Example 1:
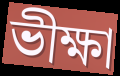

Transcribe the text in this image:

ভীক্ষা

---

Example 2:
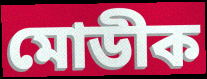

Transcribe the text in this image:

মোডীক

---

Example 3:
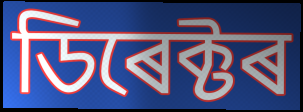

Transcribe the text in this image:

ডিৰেক্টৰ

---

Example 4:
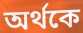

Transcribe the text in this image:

অৰ্থকে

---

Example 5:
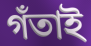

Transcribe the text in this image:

গঁতাই